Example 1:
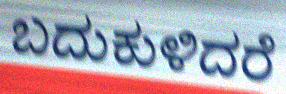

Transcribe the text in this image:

ಬದುಕುಳಿದರೆ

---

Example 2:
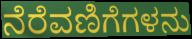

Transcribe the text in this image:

ನೆರೆವಣಿಗೆಗಳನು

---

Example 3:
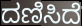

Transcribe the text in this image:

ದಣಿಸಿದೆ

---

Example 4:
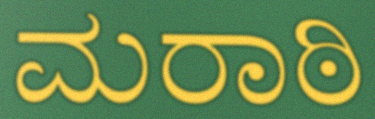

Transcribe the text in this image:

ಮರಾಠಿ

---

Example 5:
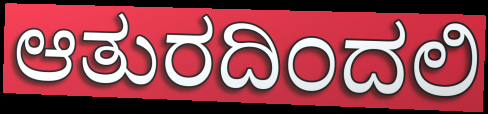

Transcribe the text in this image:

ಆತುರದಿಂದಲಿ